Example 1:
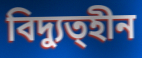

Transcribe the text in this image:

বিদ্যুত্হীন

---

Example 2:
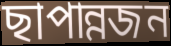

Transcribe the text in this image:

ছাপান্নজন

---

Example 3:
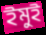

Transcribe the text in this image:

ইমুই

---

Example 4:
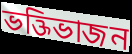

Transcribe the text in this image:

ভক্তিভাজন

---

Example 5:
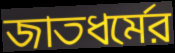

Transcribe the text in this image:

জাতধর্মের